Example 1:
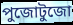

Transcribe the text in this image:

পুজোটুজো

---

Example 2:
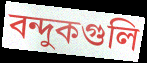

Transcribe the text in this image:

বন্দুকগুলি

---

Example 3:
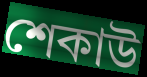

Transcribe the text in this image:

শেকাউ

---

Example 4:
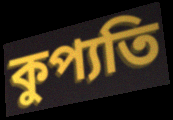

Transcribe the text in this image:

কুপ্যতি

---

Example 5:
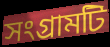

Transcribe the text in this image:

সংগ্রামটি